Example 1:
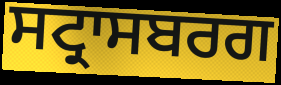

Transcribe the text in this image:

ਸਟ੍ਰਾਸਬਰਗ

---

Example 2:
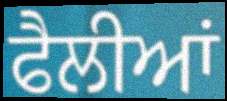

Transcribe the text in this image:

ਫੈਲੀਆਂ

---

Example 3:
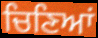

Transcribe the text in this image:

ਚਿਣਿਆਂ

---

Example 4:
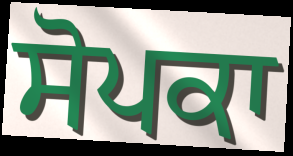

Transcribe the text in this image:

ਸੋਪਕਾ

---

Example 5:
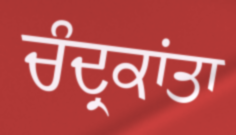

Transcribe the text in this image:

ਚੰਦ੍ਰਕਾਂਤਾ